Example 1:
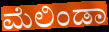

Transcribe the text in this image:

ಮೆಲಿಂಡಾ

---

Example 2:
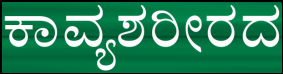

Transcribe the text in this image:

ಕಾವ್ಯಶರೀರದ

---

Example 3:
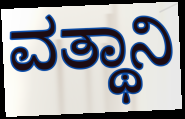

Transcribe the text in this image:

ವತ್ಥಾನಿ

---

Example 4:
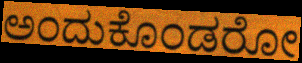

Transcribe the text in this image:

ಅಂದುಕೊಂಡರೋ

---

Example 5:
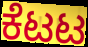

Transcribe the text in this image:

ಕೆಟಟ